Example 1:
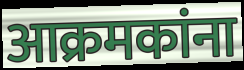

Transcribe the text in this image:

आक्रमकांना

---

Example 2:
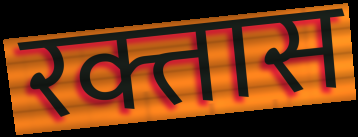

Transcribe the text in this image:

रक्तास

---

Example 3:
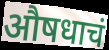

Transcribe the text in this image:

औषधाचं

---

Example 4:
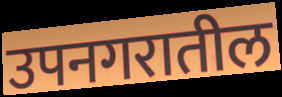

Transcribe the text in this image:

उपनगरातील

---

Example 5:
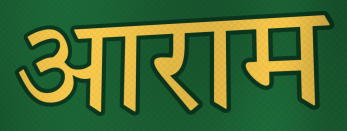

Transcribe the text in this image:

आराम